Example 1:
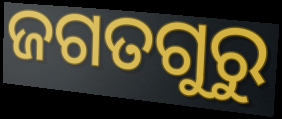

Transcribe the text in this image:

ଜଗତଗୁରୁ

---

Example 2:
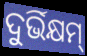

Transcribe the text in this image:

ଦୁର୍ଭିକ୍ଷମ୍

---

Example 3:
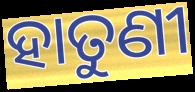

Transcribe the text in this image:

ହାତୁଣୀ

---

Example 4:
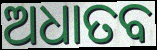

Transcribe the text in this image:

ଅଧାତବ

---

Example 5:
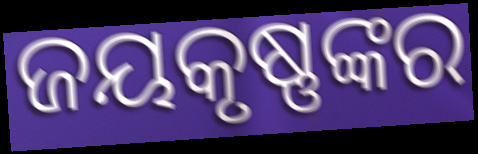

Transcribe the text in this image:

ଜୟକୃଷ୍ଣଙ୍କର